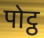
पोट्ठ